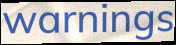
warnings